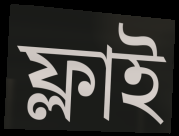
ফ্লাই